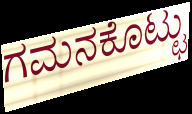
ಗಮನಕೊಟ್ಟು